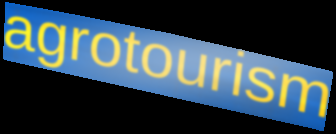
agrotourism